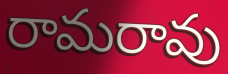
రామరావు